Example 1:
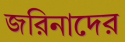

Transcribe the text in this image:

জরিনাদের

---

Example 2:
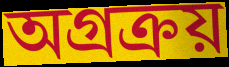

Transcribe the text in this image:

অগ্রক্রয়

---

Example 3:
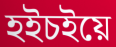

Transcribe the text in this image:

হইচইয়ে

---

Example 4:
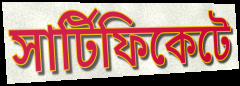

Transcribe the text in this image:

সার্টিফিকেটে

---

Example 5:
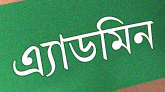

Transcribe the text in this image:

এ্যাডমিন